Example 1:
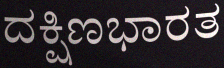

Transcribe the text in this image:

ದಕ್ಷಿಣಭಾರತ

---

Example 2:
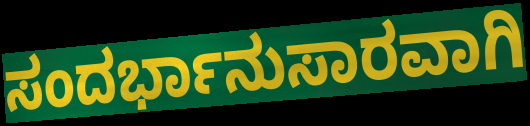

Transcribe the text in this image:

ಸಂದರ್ಭಾನುಸಾರವಾಗಿ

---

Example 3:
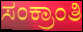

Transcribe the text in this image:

ಸಂಕ್ರಾಂತಿ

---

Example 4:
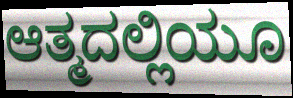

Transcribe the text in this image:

ಆತ್ಮದಲ್ಲಿಯೂ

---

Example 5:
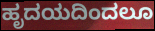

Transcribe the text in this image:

ಹೃದಯದಿಂದಲೂ